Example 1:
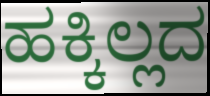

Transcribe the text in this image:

ಹಕ್ಕಿಲ್ಲದ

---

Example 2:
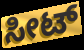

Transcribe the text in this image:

ಸೀಟ್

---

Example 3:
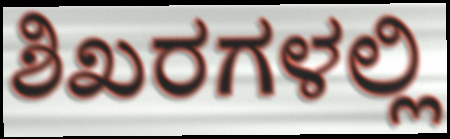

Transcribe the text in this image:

ಶಿಖರಗಳಲ್ಲಿ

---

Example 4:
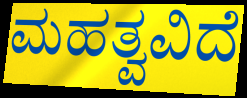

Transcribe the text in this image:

ಮಹತ್ವವಿದೆ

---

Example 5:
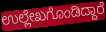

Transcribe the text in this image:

ಉಲ್ಲೇಖಗೊಂಡಿದ್ದಾರೆ